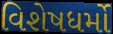
વિશેષધર્મો